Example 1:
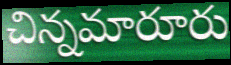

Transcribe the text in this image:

చిన్నమారూరు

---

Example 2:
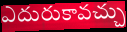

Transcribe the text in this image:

ఎదురుకావచ్చు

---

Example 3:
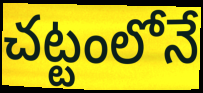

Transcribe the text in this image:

చట్టంలోనే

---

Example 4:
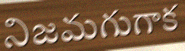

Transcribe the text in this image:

నిజమగుగాక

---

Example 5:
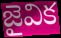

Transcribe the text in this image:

జైవిక